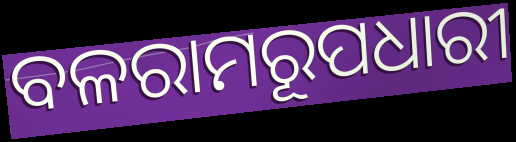
ବଳରାମରୂପଧାରୀ